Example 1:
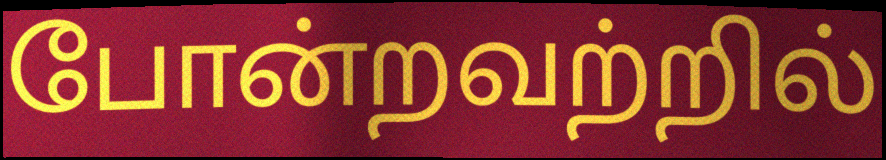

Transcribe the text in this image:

போன்றவற்றில்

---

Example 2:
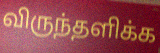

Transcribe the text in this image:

விருந்தளிக்க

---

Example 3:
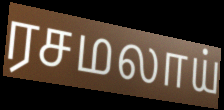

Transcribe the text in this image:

ரசமலாய்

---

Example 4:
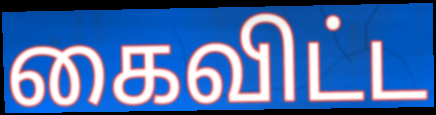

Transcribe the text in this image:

கைவிட்ட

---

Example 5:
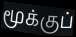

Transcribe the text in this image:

மூக்குப்